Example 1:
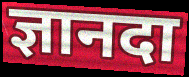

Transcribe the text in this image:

ज्ञानदा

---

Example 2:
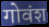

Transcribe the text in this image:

गोवंश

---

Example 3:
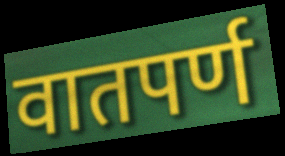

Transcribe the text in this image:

वातपर्ण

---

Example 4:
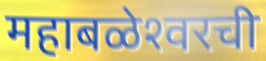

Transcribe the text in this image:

महाबळेश्वरची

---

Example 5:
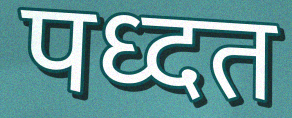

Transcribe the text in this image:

पध्दत